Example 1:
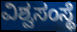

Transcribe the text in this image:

ವಿಶ್ವಸಂಸ್ಥೆ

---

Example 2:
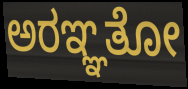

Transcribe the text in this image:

ಅರಞ್ಞತೋ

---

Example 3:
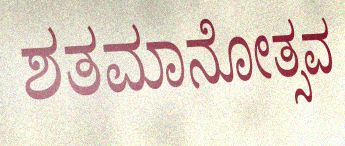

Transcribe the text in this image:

ಶತಮಾನೋತ್ಸವ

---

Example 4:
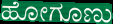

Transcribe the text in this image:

ಹೋಗೂಣು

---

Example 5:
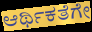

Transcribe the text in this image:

ಆರ್ಥಿಕತೆಗೇ